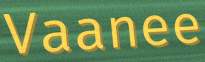
Vaanee